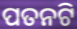
ପତନଟି